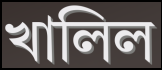
খালিল